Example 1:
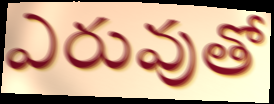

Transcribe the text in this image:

ఎరువుతో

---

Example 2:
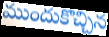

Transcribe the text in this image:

ముందుకొచ్చిన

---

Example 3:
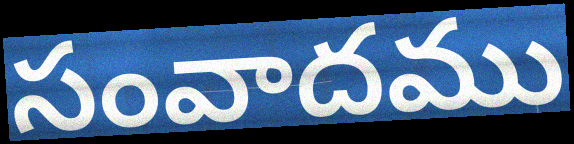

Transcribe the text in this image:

సంవాదము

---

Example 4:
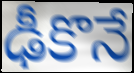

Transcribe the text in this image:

ఢీకొనే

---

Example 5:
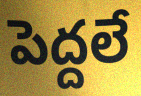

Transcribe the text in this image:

పెద్దలే